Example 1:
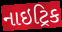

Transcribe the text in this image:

નાઇટ્રિક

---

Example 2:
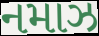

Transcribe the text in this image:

નમાઝ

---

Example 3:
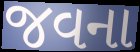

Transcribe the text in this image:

જવના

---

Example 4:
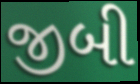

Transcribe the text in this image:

જીબી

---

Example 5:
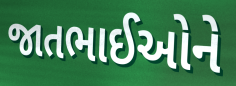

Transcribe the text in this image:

જાતભાઈઓને